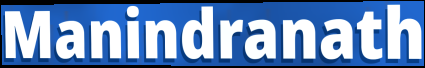
Manindranath